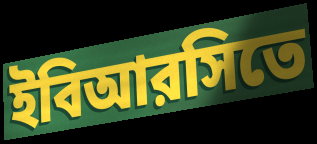
ইবিআরসিতে